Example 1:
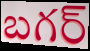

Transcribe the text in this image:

బగర్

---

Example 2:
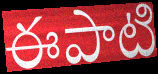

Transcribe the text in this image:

ఈపాటి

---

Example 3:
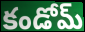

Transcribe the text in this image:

కండోమ్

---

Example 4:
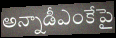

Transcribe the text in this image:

అన్నాడీఎంకేపై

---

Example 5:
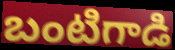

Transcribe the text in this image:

బంటిగాడి